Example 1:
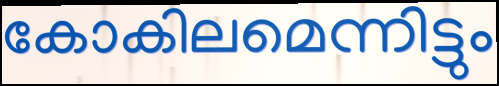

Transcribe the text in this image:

കോകിലമെന്നിട്ടും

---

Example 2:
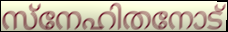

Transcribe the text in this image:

സ്നേഹിതനോട്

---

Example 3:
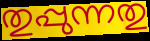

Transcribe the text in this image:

തുപ്പുന്നതു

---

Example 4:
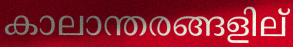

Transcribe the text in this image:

കാലാന്തരങ്ങളില്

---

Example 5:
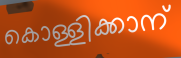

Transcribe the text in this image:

കൊള്ളിക്കാന്